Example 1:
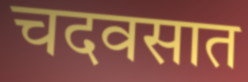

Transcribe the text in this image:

चदवसात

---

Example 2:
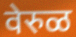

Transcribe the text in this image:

वेरुळ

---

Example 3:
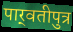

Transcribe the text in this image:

पार्वतीपुत्र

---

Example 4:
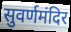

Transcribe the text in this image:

सुवर्णमंदिर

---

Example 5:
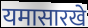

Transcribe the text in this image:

यमासारखे